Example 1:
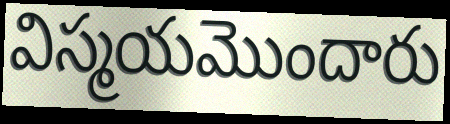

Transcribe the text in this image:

విస్మయమొందారు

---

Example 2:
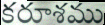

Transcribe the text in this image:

కరూశము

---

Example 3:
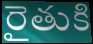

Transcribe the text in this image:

రైతుకి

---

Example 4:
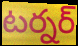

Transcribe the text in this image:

టర్నర్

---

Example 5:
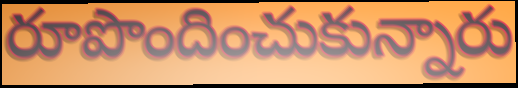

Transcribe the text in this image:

రూపొందించుకున్నారు